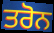
ਤਰੋਨ